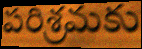
పరిశ్రమకు